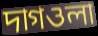
দাগওলা